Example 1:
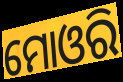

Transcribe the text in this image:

ମୋଓରି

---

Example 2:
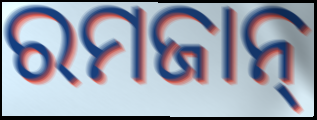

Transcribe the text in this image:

ରମଜାନ୍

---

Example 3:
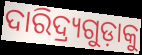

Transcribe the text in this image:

ଦାରିଦ୍ର୍ୟଗୁଡ଼ାକୁ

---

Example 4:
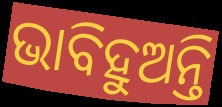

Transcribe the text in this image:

ଭାବିହୁଅନ୍ତି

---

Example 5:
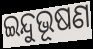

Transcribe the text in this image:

ଇନ୍ଦୁଭୂଷଣ